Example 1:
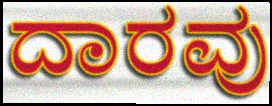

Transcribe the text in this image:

ದಾರವು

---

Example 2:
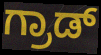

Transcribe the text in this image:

ಗ್ರಾಡ್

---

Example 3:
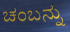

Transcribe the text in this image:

ಚಂಬನ್ನು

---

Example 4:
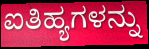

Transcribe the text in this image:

ಐತಿಹ್ಯಗಳನ್ನು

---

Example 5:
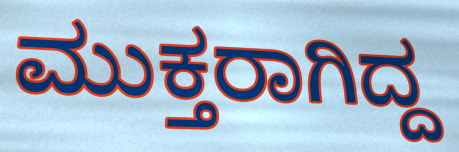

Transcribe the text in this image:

ಮುಕ್ತರಾಗಿದ್ದ